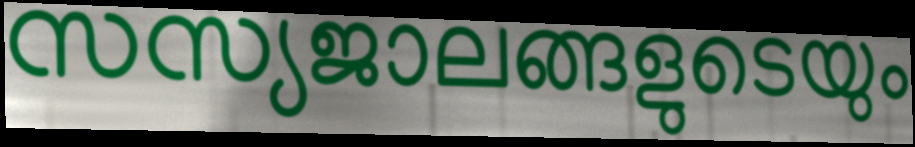
സസ്യജാലങ്ങളുടെയും